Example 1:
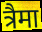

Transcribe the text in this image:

त्रैमा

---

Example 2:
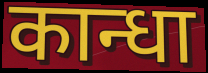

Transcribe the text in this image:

कान्धा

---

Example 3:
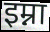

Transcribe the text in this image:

इम्ना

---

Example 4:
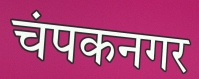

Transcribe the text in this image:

चंपकनगर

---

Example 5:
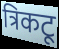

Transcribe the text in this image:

त्रिकटू